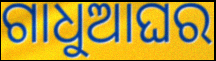
ଗାଧୁଆଘର